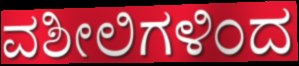
ವಶೀಲಿಗಳಿಂದ